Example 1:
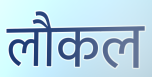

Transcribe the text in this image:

लौकल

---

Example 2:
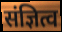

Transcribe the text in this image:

संज्ञित्व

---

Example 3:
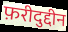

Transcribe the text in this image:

फ़रीदुद्दीन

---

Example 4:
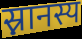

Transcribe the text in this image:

स्नानस्य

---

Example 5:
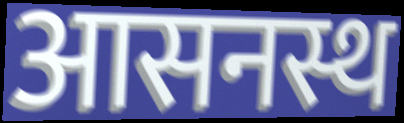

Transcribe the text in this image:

आसनस्थ